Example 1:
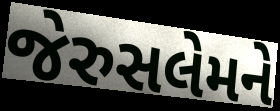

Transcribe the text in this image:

જેરુસલેમને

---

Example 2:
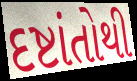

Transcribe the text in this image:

દષ્ટાંતોથી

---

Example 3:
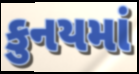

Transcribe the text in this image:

કુનયમાં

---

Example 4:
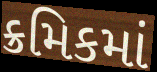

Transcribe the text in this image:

ક્રમિકમાં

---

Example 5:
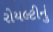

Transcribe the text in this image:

રોયલ્ટીનું